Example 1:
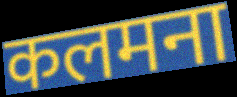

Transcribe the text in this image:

कलमना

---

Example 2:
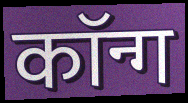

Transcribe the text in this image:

कॉन्ग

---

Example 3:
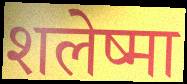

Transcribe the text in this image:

शलेष्मा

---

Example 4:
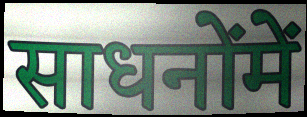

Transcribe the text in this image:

साधनोंमें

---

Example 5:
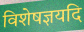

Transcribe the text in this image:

विशेषज्ञयदि